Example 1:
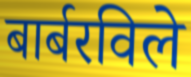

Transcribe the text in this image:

बार्बरविले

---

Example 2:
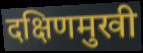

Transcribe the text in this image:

दक्षिणमुखी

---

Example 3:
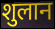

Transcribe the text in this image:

शुलान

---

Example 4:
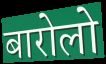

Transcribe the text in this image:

बारोलो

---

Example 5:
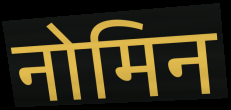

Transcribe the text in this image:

नोमिन